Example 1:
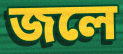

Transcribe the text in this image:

জলে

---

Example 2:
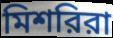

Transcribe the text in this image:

মিশরিরা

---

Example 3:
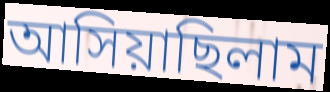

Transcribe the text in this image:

আসিয়াছিলাম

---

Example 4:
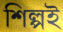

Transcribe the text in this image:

শিল্পই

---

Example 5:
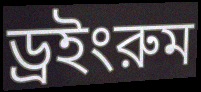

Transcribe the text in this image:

ড্রইংরুম